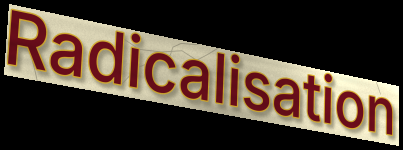
Radicalisation